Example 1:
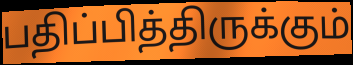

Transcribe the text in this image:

பதிப்பித்திருக்கும்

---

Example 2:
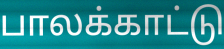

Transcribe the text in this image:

பாலக்காட்டு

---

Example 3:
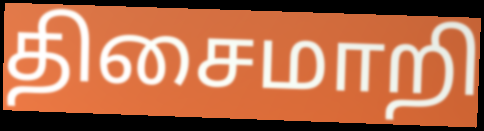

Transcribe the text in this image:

திசைமாறி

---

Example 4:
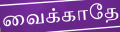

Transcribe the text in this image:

வைக்காதே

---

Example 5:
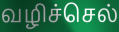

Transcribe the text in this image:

வழிச்செல்